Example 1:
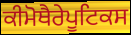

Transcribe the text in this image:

ਕੀਮੋਥੈਰੇਪੂਟਿਕਸ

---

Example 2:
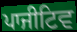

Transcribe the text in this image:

ਪਾਜੀਟਿਵ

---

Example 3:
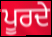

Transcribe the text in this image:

ਪੂਰਦੇ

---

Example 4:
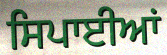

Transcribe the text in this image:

ਸਿਪਾਈਆਂ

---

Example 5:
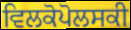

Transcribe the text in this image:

ਵਿਲਕੋਪੋਲਸਕੀ